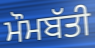
ਮੌਮਬੱਤੀ